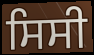
ਸਿਸੀ